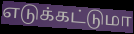
எடுக்கட்டுமா